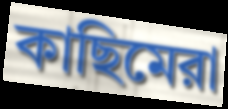
কাছিমেরা